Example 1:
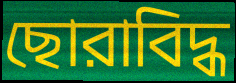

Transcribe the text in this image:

ছোরাবিদ্ধ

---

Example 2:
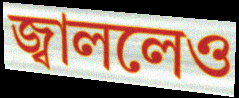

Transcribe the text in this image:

জ্বাললেও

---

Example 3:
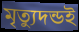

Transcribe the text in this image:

মৃত্যুদন্ডই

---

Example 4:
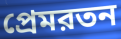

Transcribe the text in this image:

প্রেমরতন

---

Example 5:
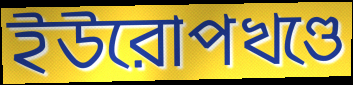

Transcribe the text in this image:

ইউরোপখণ্ডে